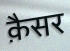
क़ैसर